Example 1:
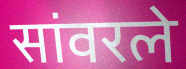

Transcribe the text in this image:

सांवरले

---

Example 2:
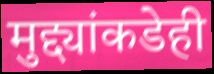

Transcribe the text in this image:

मुद्द्यांकडेही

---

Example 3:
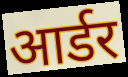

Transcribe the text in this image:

आर्डर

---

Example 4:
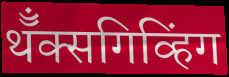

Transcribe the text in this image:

थॅँक्सगिव्हिंग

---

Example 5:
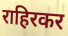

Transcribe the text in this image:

राहिरकर